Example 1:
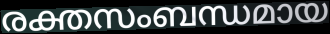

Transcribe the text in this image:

രക്തസംബന്ധമായ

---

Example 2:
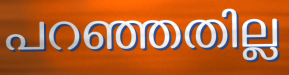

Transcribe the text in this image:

പറഞ്ഞതില്ല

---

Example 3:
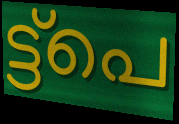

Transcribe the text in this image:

ട്ട്പെ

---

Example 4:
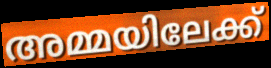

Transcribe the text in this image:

അമ്മയിലേക്ക്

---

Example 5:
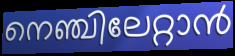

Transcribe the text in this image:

നെഞ്ചിലേറ്റാൻ